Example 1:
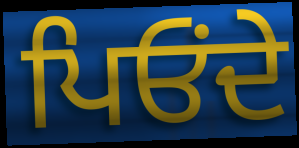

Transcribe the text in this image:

ਪਿਓਂਦੇ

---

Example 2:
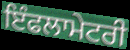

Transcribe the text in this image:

ਇੰਫਲਾਮੇਟਰੀ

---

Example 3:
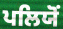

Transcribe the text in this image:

ਪਲਿਯੋਂ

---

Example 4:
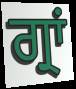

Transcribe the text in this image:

ਗ੍ਰਾਂ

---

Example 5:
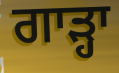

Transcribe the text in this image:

ਗਾੜ੍ਹਾ